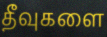
தீவுகளை